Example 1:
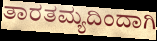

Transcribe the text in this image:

ತಾರತಮ್ಯದಿಂದಾಗಿ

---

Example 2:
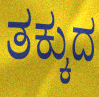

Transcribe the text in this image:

ತಕ್ಕುದ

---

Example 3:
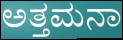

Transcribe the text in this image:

ಅತ್ತಮನಾ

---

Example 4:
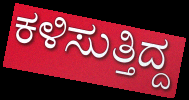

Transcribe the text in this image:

ಕಳಿಸುತ್ತಿದ್ದ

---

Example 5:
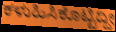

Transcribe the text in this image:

ಕಳುಹಿಸಿಕೊಟ್ಟಿದ್ದೀ